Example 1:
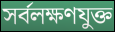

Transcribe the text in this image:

সর্বলক্ষণযুক্ত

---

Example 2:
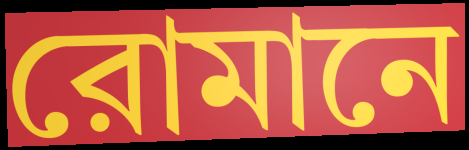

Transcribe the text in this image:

রোমানে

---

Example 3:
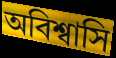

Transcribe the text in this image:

অবিশ্বাসি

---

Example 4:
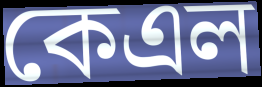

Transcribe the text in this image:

কেএল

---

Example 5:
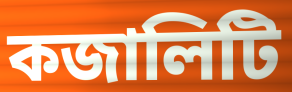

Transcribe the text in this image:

কজালিটি